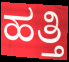
ಹತ್ತಿ